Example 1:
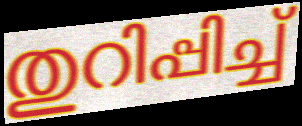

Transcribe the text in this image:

തുറിപ്പിച്ച്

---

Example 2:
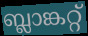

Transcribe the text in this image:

ബ്ലാങ്കറ്റ്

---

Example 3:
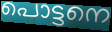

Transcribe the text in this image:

പൊട്ടനെ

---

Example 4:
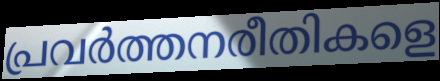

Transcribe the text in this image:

പ്രവർത്തനരീതികളെ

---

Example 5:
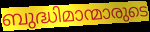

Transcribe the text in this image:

ബുദ്ധിമാന്മാരുടെ